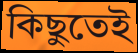
কিছুতেই